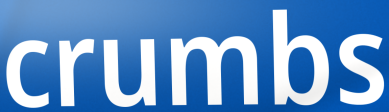
crumbs